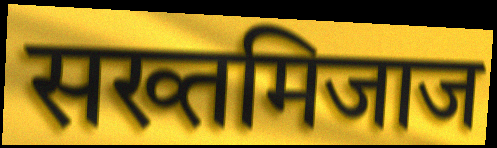
सख्तमिजाज